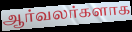
ஆர்வலர்களாக